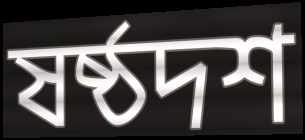
ষষ্ঠদশ